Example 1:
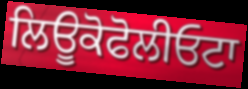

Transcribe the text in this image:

ਲਿਊਕੋਫੋਲੀਓਟਾ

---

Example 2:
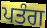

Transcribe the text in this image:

ਪਤੰਗ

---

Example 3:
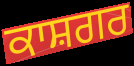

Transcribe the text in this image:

ਕਾਸ਼ਗਰ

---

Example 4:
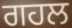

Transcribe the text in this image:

ਗਹਲ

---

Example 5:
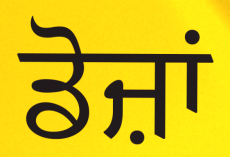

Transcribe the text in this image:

ਡੋਜ਼ਾਂ